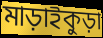
মাড়াইকুড়া